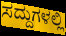
ಸದ್ದುಗಳಲ್ಲಿ